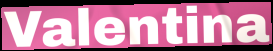
Valentina